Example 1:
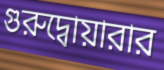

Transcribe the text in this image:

গুরুদ্বোয়ারার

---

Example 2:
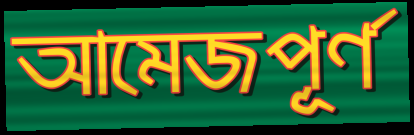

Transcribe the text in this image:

আমেজপূর্ণ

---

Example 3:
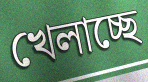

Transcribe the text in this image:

খেলাচ্ছে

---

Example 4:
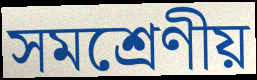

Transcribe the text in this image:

সমশ্রেণীয়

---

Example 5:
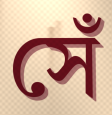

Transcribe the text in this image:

সেঁ